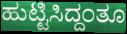
ಹುಟ್ಟಿಸಿದ್ದಂತೂ